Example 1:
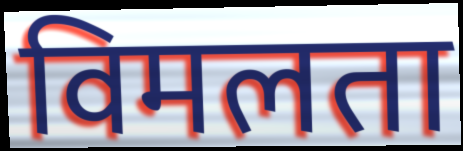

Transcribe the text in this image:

विमलता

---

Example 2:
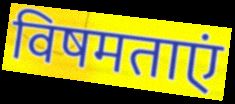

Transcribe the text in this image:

विषमताएं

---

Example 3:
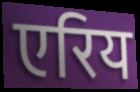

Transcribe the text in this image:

एरिय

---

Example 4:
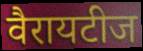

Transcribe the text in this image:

वैरायटीज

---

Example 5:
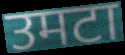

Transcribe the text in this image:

उमटा